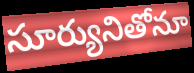
సూర్యునితోనూ